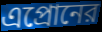
এপ্রোনের